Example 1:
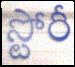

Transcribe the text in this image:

స్టోరీ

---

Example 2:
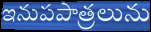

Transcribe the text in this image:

ఇనుపపాత్రలును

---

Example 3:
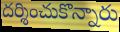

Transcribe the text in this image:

దర్శించుకొన్నారు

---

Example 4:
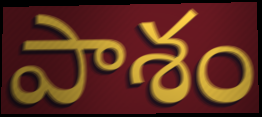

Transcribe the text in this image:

పాశం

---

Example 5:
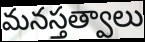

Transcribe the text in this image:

మనస్తత్వాలు